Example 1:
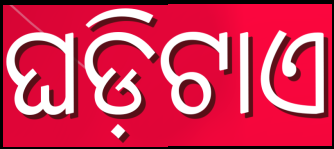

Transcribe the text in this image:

ଘଡ଼ିଟାଏ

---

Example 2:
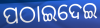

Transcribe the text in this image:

ପଠାଇଦେଇ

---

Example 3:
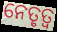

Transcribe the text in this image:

ନେତୃତ୍ଵ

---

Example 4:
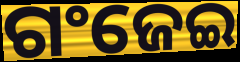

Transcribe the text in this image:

ଗଂଜେଇ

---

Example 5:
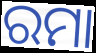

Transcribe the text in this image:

ରମା